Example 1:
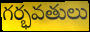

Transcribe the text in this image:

గర్భవతులు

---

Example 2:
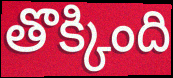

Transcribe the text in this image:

తొక్కింది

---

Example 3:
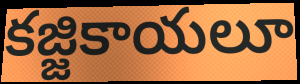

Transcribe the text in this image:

కజ్జికాయలూ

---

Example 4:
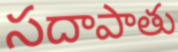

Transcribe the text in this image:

సదాపాతు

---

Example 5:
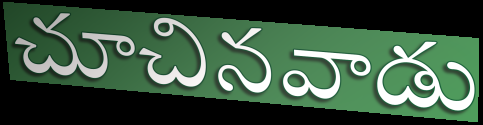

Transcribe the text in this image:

చూచినవాడు